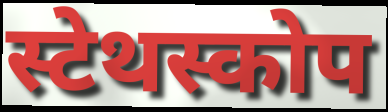
स्टेथस्कोप